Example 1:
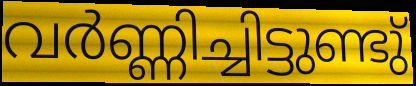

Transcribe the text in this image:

വർണ്ണിച്ചിട്ടുണ്ടു്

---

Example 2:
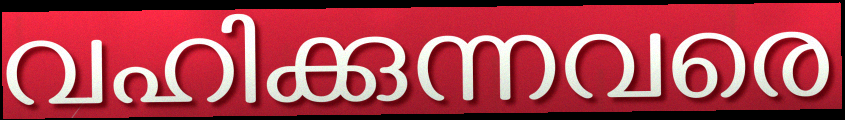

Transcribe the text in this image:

വഹിക്കുന്നവരെ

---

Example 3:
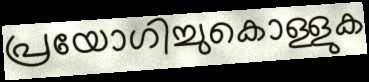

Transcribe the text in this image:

പ്രയോഗിച്ചുകൊള്ളുക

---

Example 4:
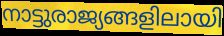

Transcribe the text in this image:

നാട്ടുരാജ്യങ്ങളിലായി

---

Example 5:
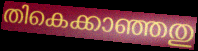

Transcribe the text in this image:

തികെക്കാഞ്ഞതു